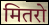
मितरो